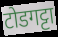
टोडगट्टा